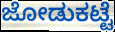
ಜೋಡುಕಟ್ಟೆ